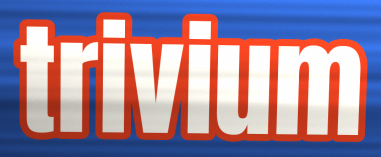
trivium